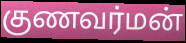
குணவர்மன்